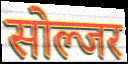
सोल्जर